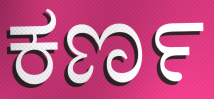
ಕರ್ಣ